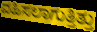
ವಹಿಸಲಾಗುತ್ತಿತ್ತು